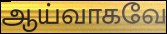
ஆய்வாகவே